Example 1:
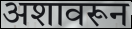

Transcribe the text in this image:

अशावरून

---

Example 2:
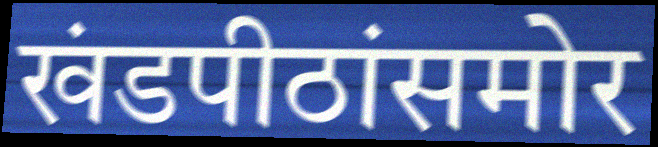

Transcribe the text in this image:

खंडपीठांसमोर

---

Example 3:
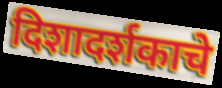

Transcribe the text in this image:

दिशादर्शकाचे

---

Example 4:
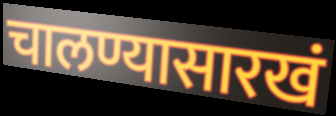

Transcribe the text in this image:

चालण्यासारखं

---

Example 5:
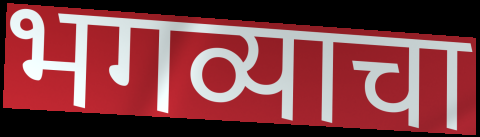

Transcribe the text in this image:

भगव्याचा